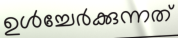
ഉൾച്ചേർക്കുന്നത്